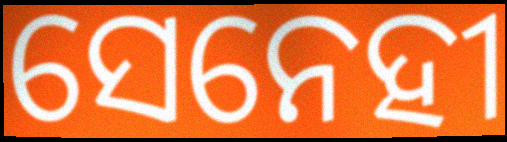
ସେନେହୀ